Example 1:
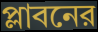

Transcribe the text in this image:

প্লাবনের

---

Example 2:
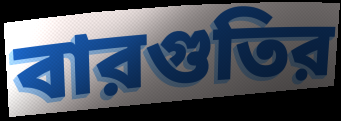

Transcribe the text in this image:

বারগুতির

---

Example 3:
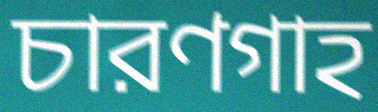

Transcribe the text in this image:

চারণগাহ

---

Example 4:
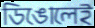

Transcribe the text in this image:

ডিঙোলেই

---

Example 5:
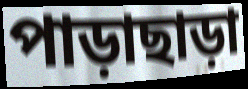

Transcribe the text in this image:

পাড়াছাড়া